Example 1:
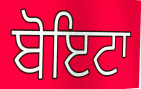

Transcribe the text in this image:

ਬੋਇਟਾ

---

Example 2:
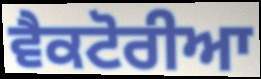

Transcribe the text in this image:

ਵੈਕਟੋਰੀਆ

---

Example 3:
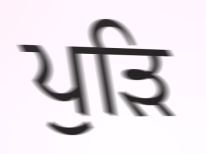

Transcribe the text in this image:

ਪੁੜਿ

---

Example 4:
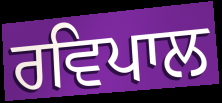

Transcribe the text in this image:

ਰਵਿਪਾਲ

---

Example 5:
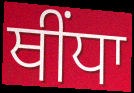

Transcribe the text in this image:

ਥੀਂਧਾ